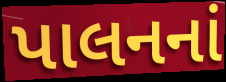
પાલનનાં